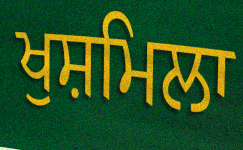
ਖੁਸ਼ਮਿਲਾ